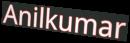
Anilkumar